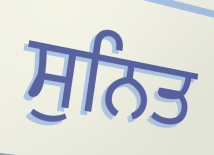
ਸੁਨਿਤ